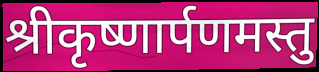
श्रीकृष्णार्पणमस्तु